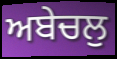
ਅਬੇਚਲੁ